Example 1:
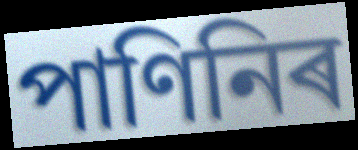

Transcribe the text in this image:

পাণিনিৰ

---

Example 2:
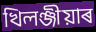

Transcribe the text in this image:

খিলঞ্জীয়াৰ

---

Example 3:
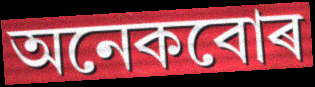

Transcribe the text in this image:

অনেকবোৰ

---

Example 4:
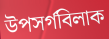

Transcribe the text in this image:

উপসৰ্গবিলাক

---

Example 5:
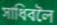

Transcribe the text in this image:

সাধিবলৈ